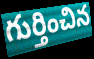
గుర్తించిన